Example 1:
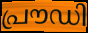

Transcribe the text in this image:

പ്രൗഡി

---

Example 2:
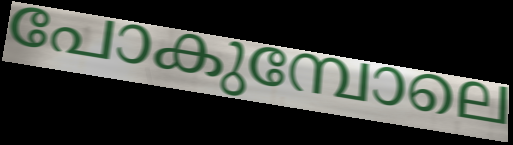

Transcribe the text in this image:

പോകുമ്പോലെ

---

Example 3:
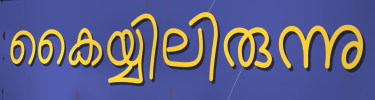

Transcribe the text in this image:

കൈയ്യിലിരുന്നു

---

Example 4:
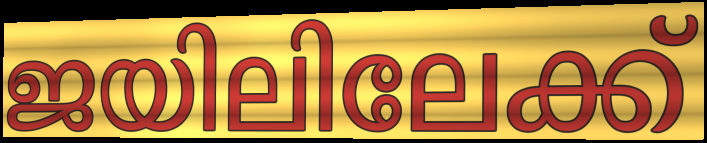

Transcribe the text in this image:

ജയിലിലേക്ക്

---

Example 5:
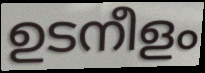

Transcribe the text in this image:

ഉടനീളം